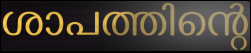
ശാപത്തിന്റെ